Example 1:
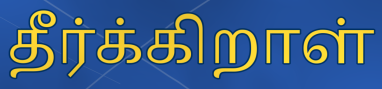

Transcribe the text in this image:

தீர்க்கிறாள்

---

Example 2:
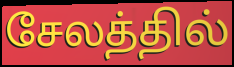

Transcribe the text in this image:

சேலத்தில்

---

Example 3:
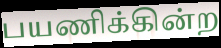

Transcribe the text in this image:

பயணிக்கின்ற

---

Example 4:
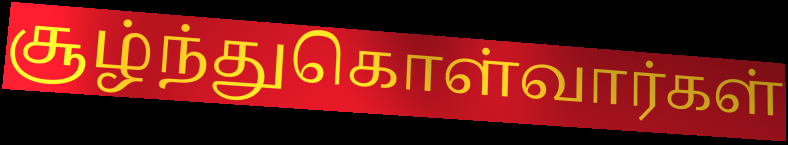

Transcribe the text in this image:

சூழ்ந்துகொள்வார்கள்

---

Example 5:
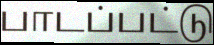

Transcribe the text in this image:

பாடப்பட்டு